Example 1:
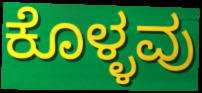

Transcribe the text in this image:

ಕೊಳ್ಳವು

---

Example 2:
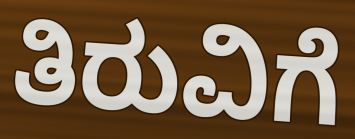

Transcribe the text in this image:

ತಿರುವಿಗೆ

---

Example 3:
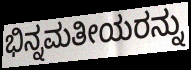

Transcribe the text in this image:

ಭಿನ್ನಮತೀಯರನ್ನು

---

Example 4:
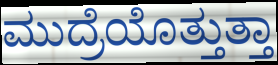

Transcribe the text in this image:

ಮುದ್ರೆಯೊತ್ತುತ್ತಾ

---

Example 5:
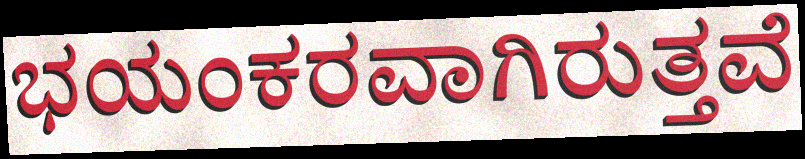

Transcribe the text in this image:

ಭಯಂಕರವಾಗಿರುತ್ತವೆ